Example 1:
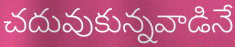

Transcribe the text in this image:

చదువుకున్నవాడినే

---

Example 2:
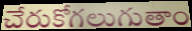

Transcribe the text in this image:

చేరుకోగలుగుతాం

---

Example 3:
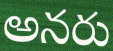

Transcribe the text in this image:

అనరు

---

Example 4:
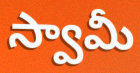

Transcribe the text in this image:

స్వామీ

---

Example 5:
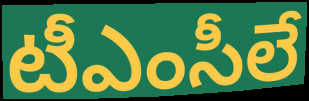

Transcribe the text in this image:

టీఎంసీలే